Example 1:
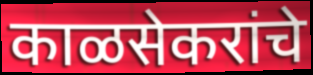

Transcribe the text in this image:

काळसेकरांचे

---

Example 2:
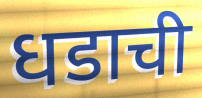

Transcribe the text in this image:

धडाची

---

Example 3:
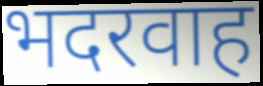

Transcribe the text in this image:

भदरवाह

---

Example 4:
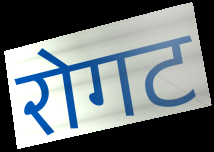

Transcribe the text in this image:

रोगट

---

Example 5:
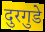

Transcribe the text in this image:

दुरगुडे